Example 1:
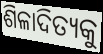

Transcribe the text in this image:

ଶିଳାଦିତ୍ୟକୁ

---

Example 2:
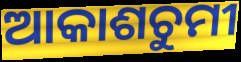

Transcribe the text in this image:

ଆକାଶଚୁମୀ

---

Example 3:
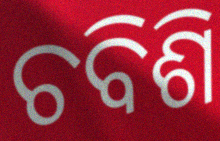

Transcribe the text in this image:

ଚବିଶି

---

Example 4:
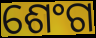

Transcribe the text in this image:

ଶେଂଗ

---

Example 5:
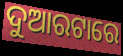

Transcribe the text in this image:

ଦୁଆରଟାରେ